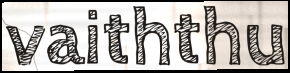
vaiththu